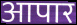
आपार